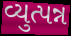
વ્યુત્પન્ન